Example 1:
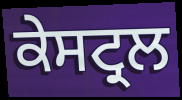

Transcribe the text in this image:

ਕੇਸਟ੍ਰਲ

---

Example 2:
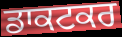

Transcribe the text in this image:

ਡਾਕਟਕਰ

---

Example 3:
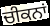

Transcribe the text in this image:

ਚੀਕਨਾਂ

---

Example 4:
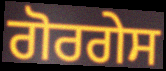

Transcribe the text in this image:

ਗੋਰਗੇਸ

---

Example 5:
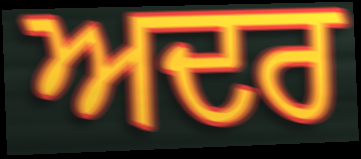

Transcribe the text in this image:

ਅਦਰ